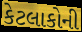
કેટલાકોની